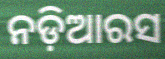
ନଡ଼ିଆରସ